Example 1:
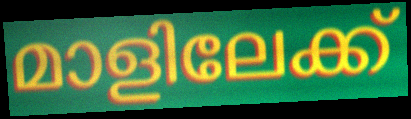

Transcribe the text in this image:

മാളിലേക്ക്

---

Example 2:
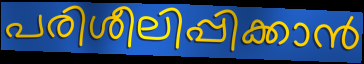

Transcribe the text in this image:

പരിശീലിപ്പിക്കാൻ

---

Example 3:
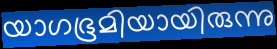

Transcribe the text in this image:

യാഗഭൂമിയായിരുന്നു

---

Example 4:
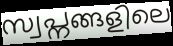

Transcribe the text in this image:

സ്വപ്നങ്ങളിലെ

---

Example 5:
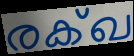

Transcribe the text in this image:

രക്ഖ